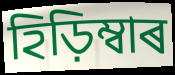
হিড়িম্বাৰ